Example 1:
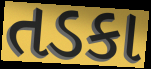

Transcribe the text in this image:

તડકા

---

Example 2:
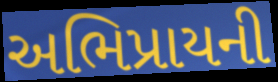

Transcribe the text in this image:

અભિપ્રાયની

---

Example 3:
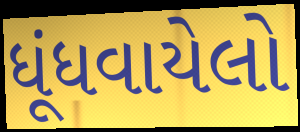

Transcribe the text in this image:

ધૂંધવાયેલો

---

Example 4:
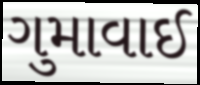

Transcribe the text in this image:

ગુમાવાઈ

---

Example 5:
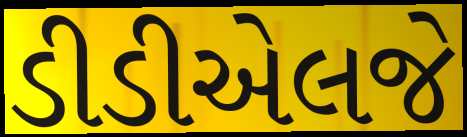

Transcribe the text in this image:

ડીડીએલજે